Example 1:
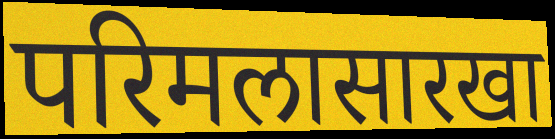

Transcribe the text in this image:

परिमलासारखा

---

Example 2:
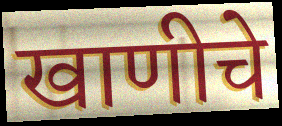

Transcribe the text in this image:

खाणीचे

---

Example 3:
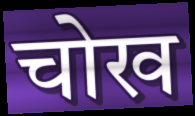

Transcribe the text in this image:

चोख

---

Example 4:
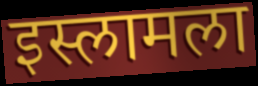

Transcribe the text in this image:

इस्लामला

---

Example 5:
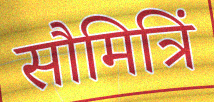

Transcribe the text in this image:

सौमित्रिं